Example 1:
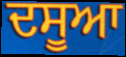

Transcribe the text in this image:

ਦਸੂਆ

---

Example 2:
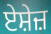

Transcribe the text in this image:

ਏਸ਼ੇਜ਼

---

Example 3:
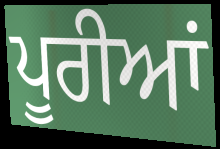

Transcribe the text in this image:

ਪੂਰੀਆਂ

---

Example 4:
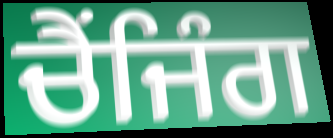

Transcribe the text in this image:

ਚੈਂਜਿੰਗ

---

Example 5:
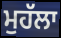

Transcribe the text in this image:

ਮੁਹੱਲਾ